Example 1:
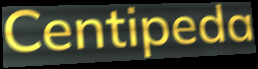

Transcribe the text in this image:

Centipeda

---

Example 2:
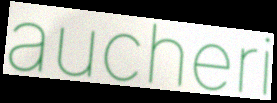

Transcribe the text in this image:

aucheri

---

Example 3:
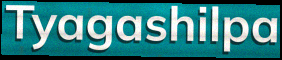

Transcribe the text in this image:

Tyagashilpa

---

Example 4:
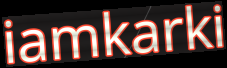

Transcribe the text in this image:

iamkarki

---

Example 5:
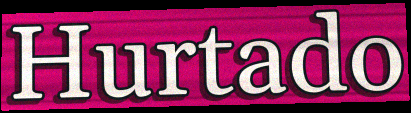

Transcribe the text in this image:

Hurtado